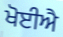
ਖੋਈਐ